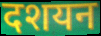
दशयन